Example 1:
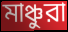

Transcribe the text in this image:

মাঞ্চুরা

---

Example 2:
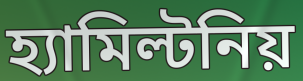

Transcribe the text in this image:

হ্যামিল্টনিয়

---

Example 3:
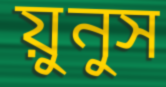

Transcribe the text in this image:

য়ুনুস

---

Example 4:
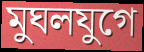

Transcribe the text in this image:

মুঘলযুগে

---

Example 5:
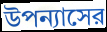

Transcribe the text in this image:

উপন্যাসের